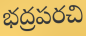
భద్రపరచి